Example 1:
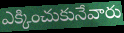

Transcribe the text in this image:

ఎక్కించుకునేవారు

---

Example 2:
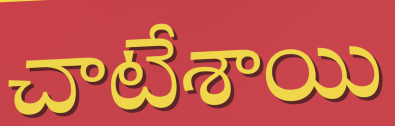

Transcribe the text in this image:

చాటేశాయి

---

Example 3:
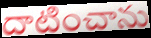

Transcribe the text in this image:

దాటించాను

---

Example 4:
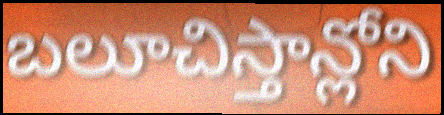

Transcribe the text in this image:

బలూచిస్తాన్లోని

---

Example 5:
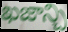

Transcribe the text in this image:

ఖజాన్చి